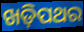
ଖଡ଼ିପଥର